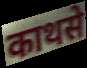
काथसे